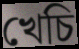
খেচি